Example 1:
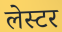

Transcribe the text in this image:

लेस्टर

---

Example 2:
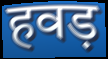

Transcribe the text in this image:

हवड़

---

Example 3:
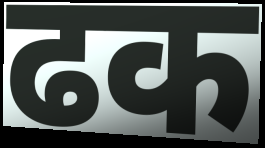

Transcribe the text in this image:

ढक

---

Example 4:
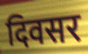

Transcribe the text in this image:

दिवसर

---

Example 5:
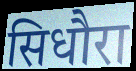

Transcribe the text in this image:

सिधौरा